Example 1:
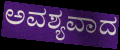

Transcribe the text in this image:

ಅವಶ್ಯವಾದ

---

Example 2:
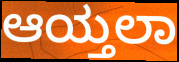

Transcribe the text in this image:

ಆಯ್ತಲಾ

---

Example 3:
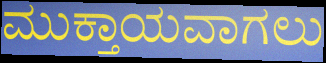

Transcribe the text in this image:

ಮುಕ್ತಾಯವಾಗಲು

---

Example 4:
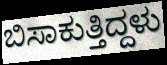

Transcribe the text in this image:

ಬಿಸಾಕುತ್ತಿದ್ದಳು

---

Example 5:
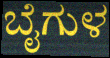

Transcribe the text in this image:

ಬೈಗುಳ